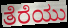
ತೆರೆಯು